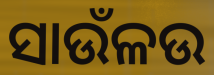
ସାଉଁଳଉ